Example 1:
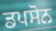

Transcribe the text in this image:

ਡਪਸੋਨ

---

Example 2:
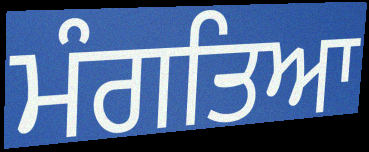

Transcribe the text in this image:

ਮੰਗਤਿਆ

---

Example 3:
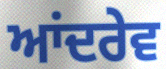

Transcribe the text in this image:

ਆਂਦਰੇਵ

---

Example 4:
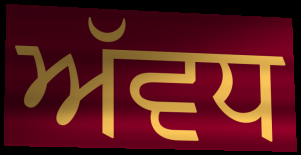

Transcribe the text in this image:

ਅੱਵਧ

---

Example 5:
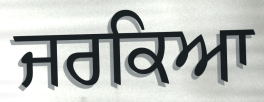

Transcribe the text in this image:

ਜਰਕਿਆ